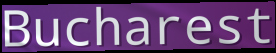
Bucharest